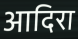
आदिरा